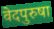
वेदपुरुषा